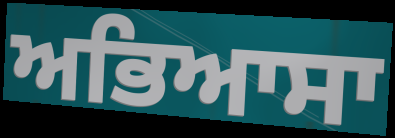
ਅਭਿਆਸਾ